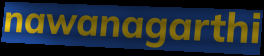
nawanagarthi